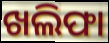
ଖଲିଫା